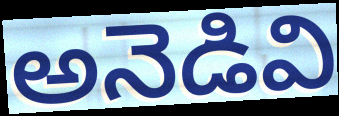
అనెడివి